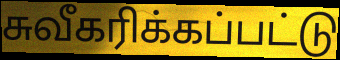
சுவீகரிக்கப்பட்டு